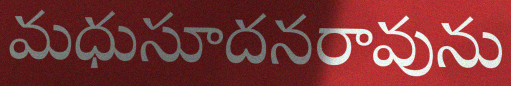
మధుసూదనరావును